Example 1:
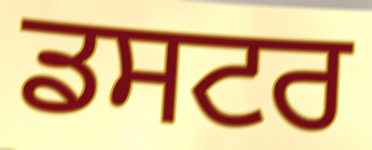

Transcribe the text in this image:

ਡਸਟਰ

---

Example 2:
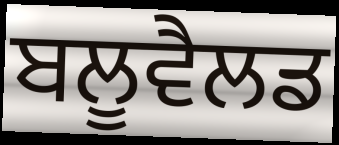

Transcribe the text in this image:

ਬਲੂਵੈਲਡ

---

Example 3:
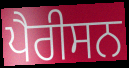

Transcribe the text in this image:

ਪੈਰੀਸਨ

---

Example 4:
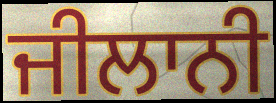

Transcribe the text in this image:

ਜੀਲਾਨੀ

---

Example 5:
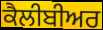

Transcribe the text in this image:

ਕੈਲੀਬੀਅਰ